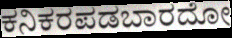
ಕನಿಕರಪಡಬಾರದೋ